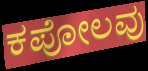
ಕಪೋಲವು